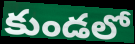
కుండలో